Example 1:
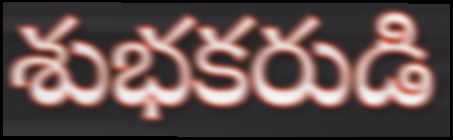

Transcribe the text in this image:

శుభకరుడి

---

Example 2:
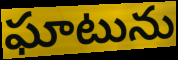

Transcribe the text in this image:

ఘాటును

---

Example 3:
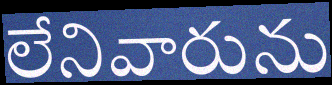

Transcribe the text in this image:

లేనివారును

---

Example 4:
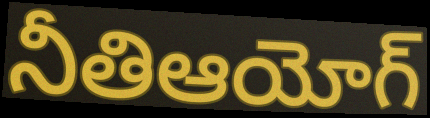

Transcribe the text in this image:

నీతిఆయోగ్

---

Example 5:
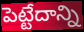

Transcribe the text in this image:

పెట్టేదాన్ని